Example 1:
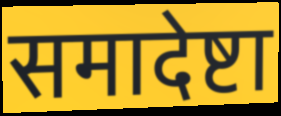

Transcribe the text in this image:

समादेष्टा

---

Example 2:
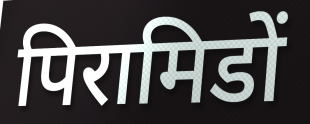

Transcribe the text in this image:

पिरामिडों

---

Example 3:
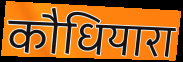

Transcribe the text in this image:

कौधियारा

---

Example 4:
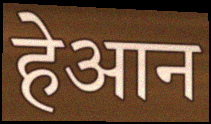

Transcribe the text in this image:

हेआन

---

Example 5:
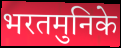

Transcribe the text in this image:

भरतमुनिके